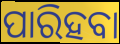
ପାରିହବା